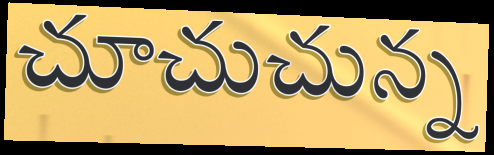
చూచుచున్న